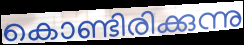
കൊണ്ടിരിക്കുന്നു